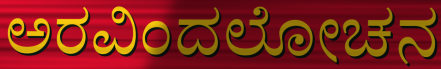
ಅರವಿಂದಲೋಚನ